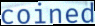
coined